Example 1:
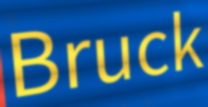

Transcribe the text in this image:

Bruck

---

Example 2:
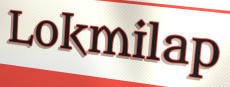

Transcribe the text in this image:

Lokmilap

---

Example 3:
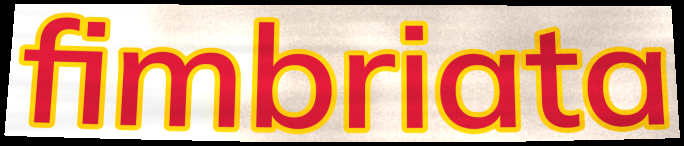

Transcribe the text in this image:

fimbriata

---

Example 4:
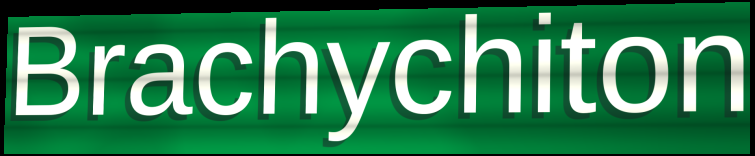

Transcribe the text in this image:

Brachychiton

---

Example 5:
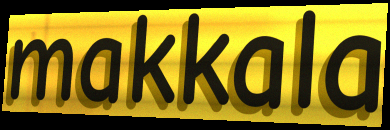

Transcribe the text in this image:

makkala